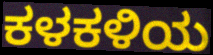
ಕಳಕಳಿಯ